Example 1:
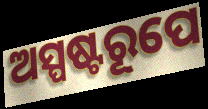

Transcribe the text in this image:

ଅସ୍ପଷ୍ଟରୂପେ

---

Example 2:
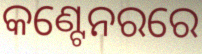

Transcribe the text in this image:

କଣ୍ଟେନରରେ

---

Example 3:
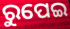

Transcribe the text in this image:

ରୁପେଇ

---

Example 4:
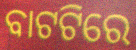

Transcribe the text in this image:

ବାଟଟିରେ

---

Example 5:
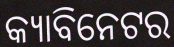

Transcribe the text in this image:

କ୍ୟାବିନେଟର